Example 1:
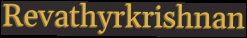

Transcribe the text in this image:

Revathyrkrishnan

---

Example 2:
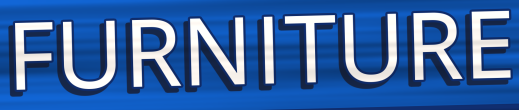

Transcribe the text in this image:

FURNITURE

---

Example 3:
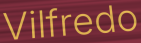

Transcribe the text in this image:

Vilfredo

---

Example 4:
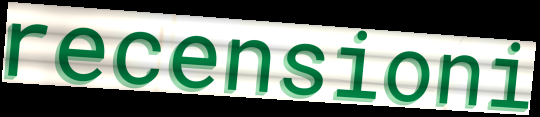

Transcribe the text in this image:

recensioni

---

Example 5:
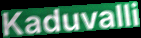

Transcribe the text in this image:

Kaduvalli